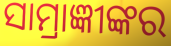
ସାମ୍ରାଜ୍ଞୀଙ୍କର